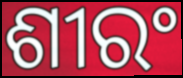
ଶୀରଂ